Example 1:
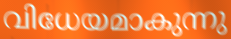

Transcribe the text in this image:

വിധേയമാകുന്നു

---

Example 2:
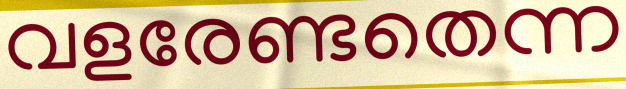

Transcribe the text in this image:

വളരേണ്ടതെന്ന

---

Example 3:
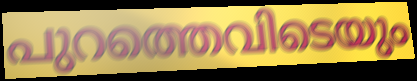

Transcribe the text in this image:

പുറത്തെവിടെയും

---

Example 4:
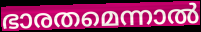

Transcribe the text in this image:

ഭാരതമെന്നാൽ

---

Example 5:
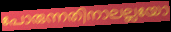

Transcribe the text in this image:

പോരുന്നതിനാലല്ലയോ